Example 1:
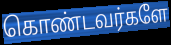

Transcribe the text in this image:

கொண்டவர்களே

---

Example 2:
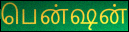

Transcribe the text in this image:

பென்ஷன்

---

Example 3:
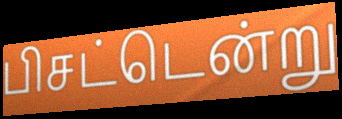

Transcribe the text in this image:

பிசட்டென்று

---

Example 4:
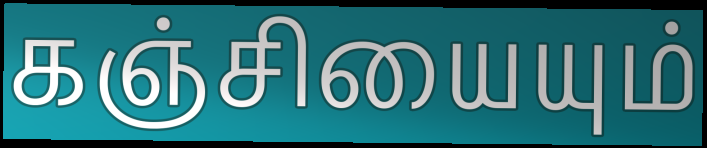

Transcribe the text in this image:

கஞ்சியையும்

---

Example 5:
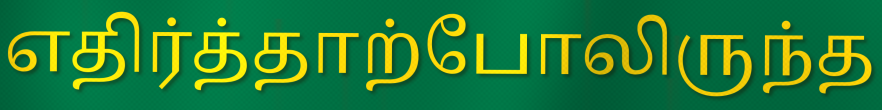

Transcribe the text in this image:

எதிர்த்தாற்போலிருந்த